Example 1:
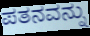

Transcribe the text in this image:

ಪತನವನ್ನು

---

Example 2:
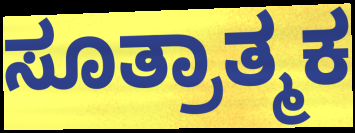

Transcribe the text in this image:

ಸೂತ್ರಾತ್ಮಕ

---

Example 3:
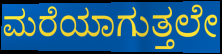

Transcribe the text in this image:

ಮರೆಯಾಗುತ್ತಲೇ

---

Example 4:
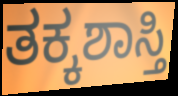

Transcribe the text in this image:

ತಕ್ಕಶಾಸ್ತಿ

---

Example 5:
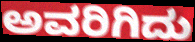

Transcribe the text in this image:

ಅವರಿಗಿದು